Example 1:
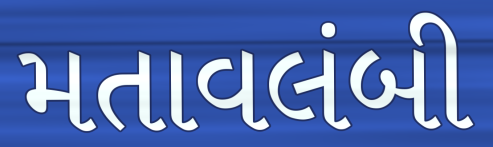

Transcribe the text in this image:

મતાવલંબી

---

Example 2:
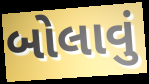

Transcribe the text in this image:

બોલાવું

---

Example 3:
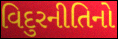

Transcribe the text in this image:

વિદુરનીતિનો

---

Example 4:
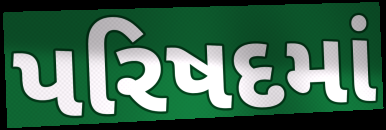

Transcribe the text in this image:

પરિષદમાં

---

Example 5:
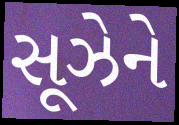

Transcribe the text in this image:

સૂઝેને